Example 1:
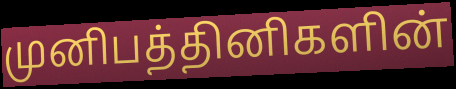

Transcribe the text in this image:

முனிபத்தினிகளின்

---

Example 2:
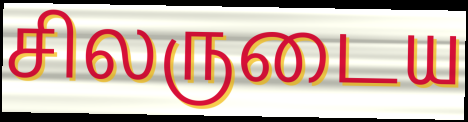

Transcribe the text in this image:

சிலருடைய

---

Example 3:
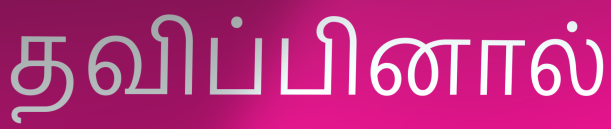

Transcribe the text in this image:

தவிப்பினால்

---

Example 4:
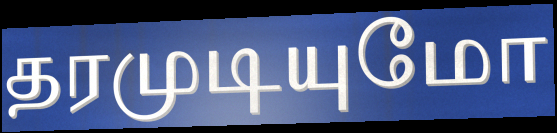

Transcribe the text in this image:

தரமுடியுமோ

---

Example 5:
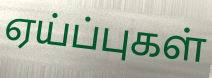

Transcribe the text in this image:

ஏய்ப்புகள்